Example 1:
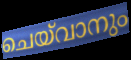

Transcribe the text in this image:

ചെയ്‌വാനും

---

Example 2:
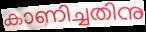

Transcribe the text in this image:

കാണിച്ചതിനു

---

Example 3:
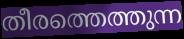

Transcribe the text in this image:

തീരത്തെത്തുന്ന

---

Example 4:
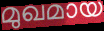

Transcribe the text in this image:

മുഖമായ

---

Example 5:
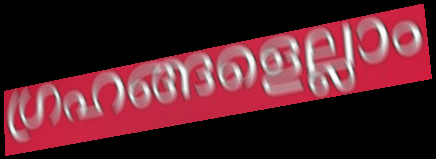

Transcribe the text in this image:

ഗ്രഹങ്ങളെല്ലാം